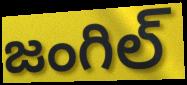
జంగిల్